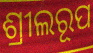
ଶ୍ରୀଲରୂପ